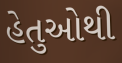
હેતુઓથી